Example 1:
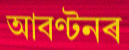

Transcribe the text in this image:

আবণ্টনৰ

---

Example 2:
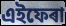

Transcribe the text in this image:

এইফেৰা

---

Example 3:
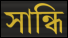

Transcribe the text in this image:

সান্ধি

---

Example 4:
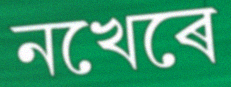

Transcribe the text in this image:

নখেৰে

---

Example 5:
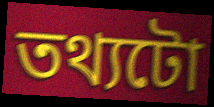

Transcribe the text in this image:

তথ্যটো